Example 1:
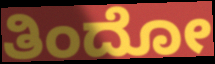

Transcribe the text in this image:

ತಿಂದೋ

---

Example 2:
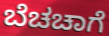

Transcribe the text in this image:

ಬೆಚಚಾಗೆ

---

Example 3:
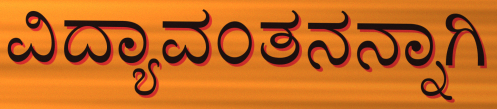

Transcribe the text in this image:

ವಿದ್ಯಾವಂತನನ್ನಾಗಿ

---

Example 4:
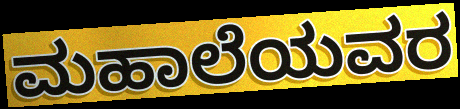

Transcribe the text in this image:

ಮಹಾಲೆಯವರ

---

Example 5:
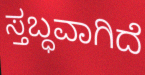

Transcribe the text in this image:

ಸ್ತಬ್ಧವಾಗಿದೆ